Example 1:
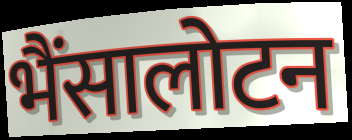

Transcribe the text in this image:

भैंसालोटन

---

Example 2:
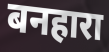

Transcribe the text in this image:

बनहारा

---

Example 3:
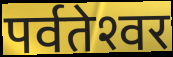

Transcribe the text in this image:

पर्वतेश्वर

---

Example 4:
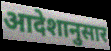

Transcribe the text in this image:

आदेशानुसार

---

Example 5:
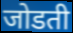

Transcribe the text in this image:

जोडती